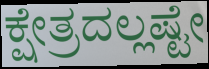
ಕ್ಷೇತ್ರದಲ್ಲಷ್ಟೇ